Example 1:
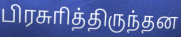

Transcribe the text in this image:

பிரசுரித்திருந்தன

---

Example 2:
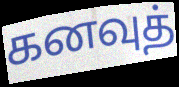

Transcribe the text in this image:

கனவுத்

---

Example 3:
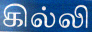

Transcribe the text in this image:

கில்லி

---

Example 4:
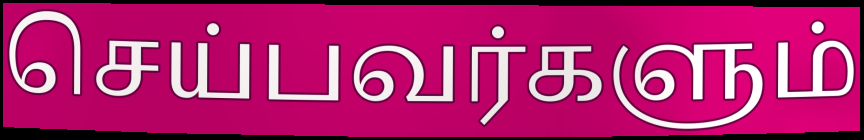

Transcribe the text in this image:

செய்பவர்களும்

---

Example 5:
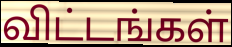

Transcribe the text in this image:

விட்டங்கள்